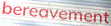
bereavement